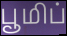
பூமிப்